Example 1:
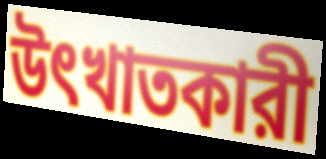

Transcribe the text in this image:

উৎখাতকারী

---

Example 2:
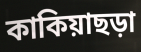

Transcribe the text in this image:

কাকিয়াছড়া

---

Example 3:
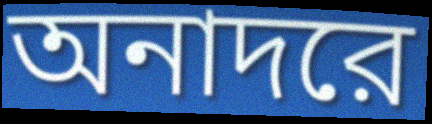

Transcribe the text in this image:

অনাদরে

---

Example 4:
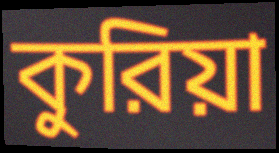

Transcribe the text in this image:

কুরিয়া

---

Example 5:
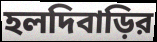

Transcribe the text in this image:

হলদিবাড়ির